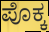
ಪೊಕ್ಕ